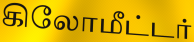
கிலோமீட்டர்